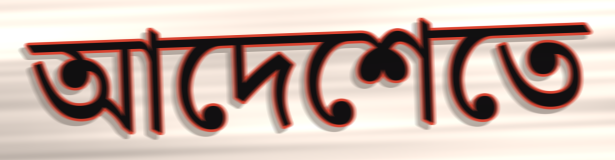
আদেশেতে